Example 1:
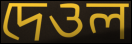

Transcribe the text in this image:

দেওল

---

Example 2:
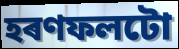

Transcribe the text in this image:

হৰণফলটো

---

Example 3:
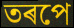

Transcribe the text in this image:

তৰপে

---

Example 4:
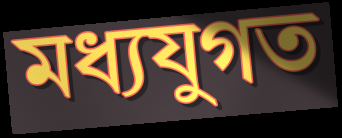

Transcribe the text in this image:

মধ্যযুগত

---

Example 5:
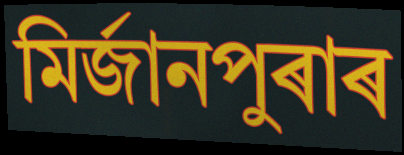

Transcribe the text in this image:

মিৰ্জানপুৰাৰ